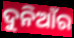
ଦୁନିଆଁର